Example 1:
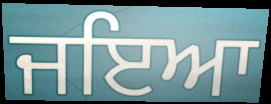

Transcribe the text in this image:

ਜਇਆ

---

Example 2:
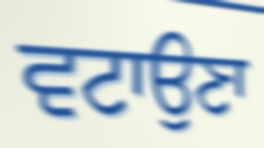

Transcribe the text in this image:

ਵਟਾਉਣਾ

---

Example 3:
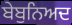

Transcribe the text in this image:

ਬੇਬੁਨਿਅਦ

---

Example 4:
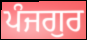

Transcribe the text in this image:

ਪੰਜਗੁਰ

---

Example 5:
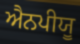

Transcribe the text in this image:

ਐਨਪੀਯੂ